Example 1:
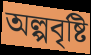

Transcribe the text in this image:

অল্পবৃষ্টি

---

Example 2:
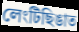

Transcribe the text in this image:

লেংটিছিঙাত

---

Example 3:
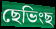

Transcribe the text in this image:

ছেভিংছ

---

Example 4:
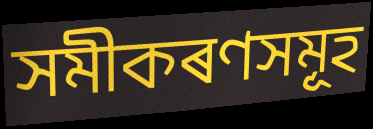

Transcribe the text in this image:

সমীকৰণসমূহ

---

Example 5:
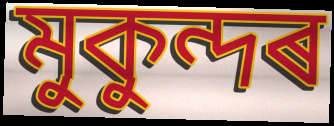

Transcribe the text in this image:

মুকুন্দৰ